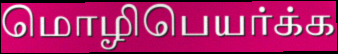
மொழிபெயர்க்க